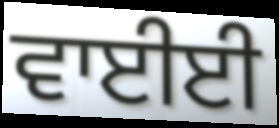
ਵਾਈਈ